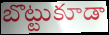
బొట్టుకూడా